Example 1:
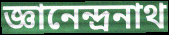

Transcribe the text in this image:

জ্ঞানেন্দ্রনাথ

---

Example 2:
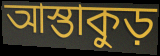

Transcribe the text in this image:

আস্তাকুড়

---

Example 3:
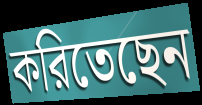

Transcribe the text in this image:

করিতেছেন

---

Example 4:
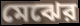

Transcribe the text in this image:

মেঝের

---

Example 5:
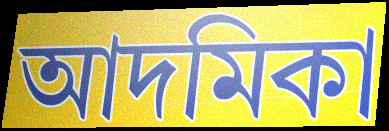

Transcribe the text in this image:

আদমিকা